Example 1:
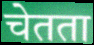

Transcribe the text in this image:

चेतता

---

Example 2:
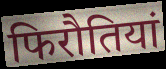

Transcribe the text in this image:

फिरौतियां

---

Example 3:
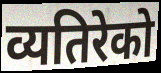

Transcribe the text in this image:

व्यतिरेको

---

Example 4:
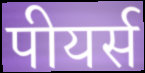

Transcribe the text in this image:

पीयर्स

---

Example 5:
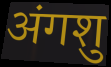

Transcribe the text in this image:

अंगशु